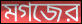
মগজের